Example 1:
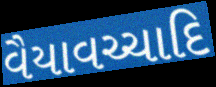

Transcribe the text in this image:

વૈયાવચ્ચાદિ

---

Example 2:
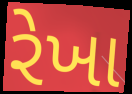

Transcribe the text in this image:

રેખા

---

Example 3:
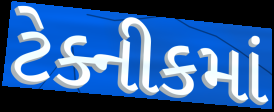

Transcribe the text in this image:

ટેક્નીકમાં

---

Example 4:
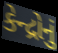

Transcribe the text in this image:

કેન્દ્રોનું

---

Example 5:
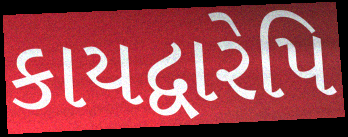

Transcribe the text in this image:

કાયદ્વારેપિ